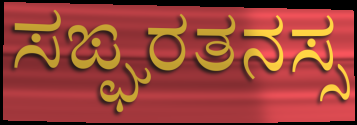
ಸಙ್ಘರತನಸ್ಸ